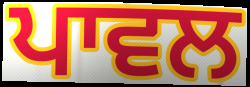
ਪਾਵਲ